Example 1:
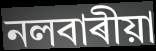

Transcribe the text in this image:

নলবাৰীয়া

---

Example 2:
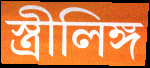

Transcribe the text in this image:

স্ত্ৰীলিঙ্গ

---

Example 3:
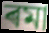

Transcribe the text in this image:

ৰমা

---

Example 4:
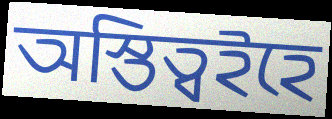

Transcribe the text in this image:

অস্তিত্বইহে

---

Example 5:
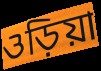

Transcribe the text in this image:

ওড়িয়া